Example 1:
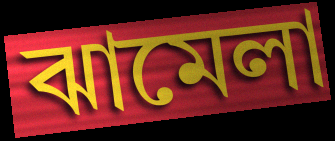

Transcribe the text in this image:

ঝামেলা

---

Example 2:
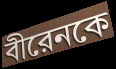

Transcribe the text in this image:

বীরেনকে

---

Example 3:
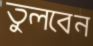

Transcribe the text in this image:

তুলবেন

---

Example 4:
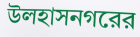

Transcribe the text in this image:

উলহাসনগরের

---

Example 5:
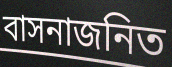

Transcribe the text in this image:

বাসনাজনিত